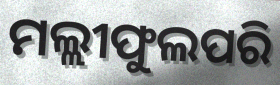
ମଲ୍ଲୀଫୁଲପରି